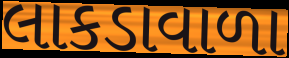
લાકડાવાળા